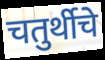
चतुर्थीचे